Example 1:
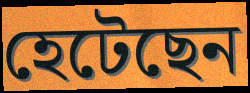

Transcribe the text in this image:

হেটেছেন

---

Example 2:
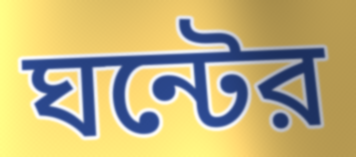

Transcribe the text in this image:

ঘন্টের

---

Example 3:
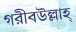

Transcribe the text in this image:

গরীবউল্লাহ্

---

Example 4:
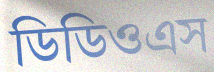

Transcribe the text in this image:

ডিডিওএস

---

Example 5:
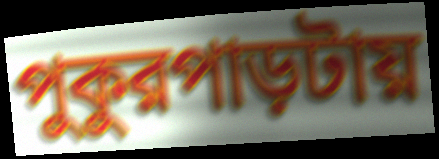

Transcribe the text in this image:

পুকুরপাড়টায়